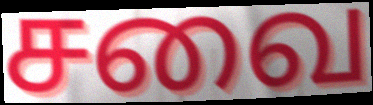
சவை